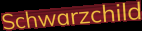
Schwarzchild